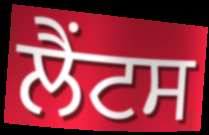
ਲੈਂਟਸ